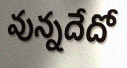
వున్నదేదో